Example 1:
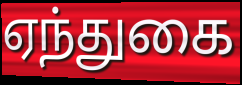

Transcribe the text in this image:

ஏந்துகை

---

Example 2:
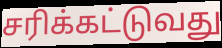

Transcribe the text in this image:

சரிக்கட்டுவது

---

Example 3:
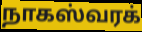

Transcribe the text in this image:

நாகஸ்வரக்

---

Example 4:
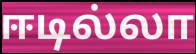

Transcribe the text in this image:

ஈடில்லா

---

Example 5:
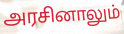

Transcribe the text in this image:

அரசினாலும்